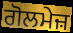
ਗੋਲਮੇਜ਼